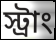
স্ট্রাং